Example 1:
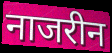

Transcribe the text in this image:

नाजरीन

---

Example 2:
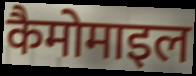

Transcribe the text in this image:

कैमोमाइल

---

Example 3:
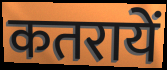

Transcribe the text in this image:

कतरायें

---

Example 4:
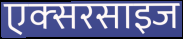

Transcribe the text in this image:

एक्‍सरसाइज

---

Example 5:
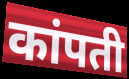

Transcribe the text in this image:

कांपती